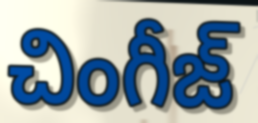
చింగీజ్